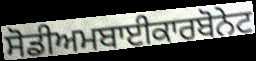
ਸੋਡੀਅਮਬਾਈਕਾਰਬੋਨੇਟ